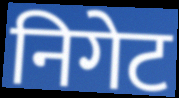
निगेट